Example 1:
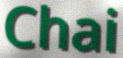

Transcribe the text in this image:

Chai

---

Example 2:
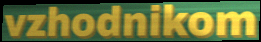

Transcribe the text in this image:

vzhodnikom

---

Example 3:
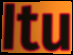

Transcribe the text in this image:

Itu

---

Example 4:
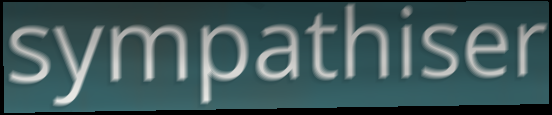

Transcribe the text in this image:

sympathiser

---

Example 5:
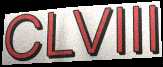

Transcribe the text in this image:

CLVIII